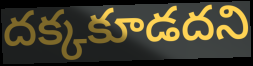
దక్కకూడదని